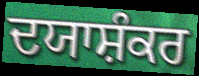
ਦਯਾਸ਼ੰਕਰ